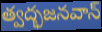
త్వద్భజనవాన్